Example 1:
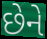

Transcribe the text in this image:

છેને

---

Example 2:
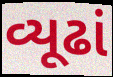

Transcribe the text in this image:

વ્યૂઢાં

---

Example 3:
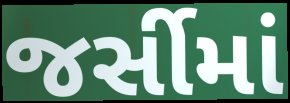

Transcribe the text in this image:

જર્સીમાં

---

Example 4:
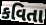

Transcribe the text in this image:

કવિતા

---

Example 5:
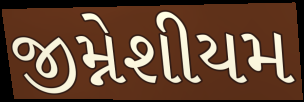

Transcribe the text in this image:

જીમ્નેશીયમ